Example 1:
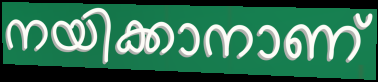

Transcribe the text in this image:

നയിക്കാനാണ്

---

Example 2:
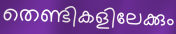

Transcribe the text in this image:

തെണ്ടികളിലേക്കും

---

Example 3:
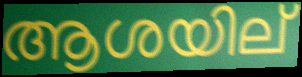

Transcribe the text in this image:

ആശയില്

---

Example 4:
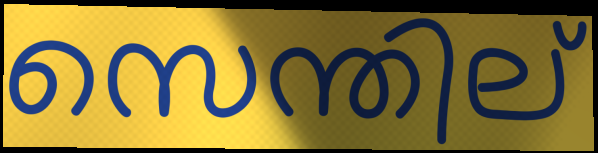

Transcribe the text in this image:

സെന്തില്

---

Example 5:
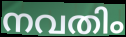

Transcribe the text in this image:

നവതിം